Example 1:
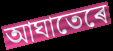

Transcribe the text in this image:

আঘাতেৰে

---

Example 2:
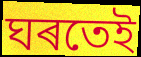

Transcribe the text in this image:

ঘৰতেই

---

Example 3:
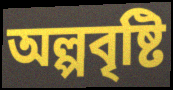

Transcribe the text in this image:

অল্পবৃষ্টি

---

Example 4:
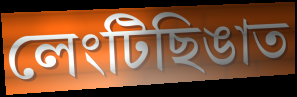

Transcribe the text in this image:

লেংটিছিঙাত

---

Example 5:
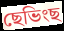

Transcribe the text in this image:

ছেভিংছ